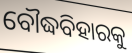
ବୌଦ୍ଧବିହାରକୁ